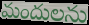
మందులను